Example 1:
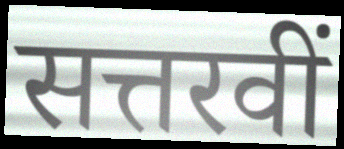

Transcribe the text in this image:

सत्तरवीं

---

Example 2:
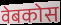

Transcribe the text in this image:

वेबकोस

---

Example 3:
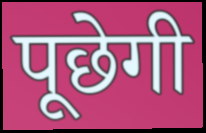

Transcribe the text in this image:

पूछेगी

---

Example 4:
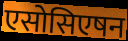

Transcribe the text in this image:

एसोसिएषन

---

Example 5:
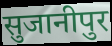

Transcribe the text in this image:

सुजानीपुर